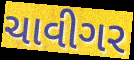
ચાવીગર